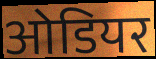
ओडियर